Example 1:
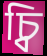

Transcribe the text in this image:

চ্বি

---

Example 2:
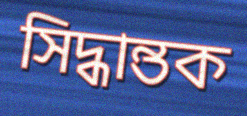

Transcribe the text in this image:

সিদ্ধান্তক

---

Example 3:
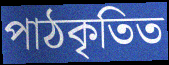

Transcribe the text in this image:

পাঠকৃতিত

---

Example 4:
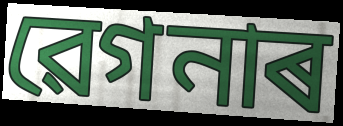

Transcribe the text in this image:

ৱেগনাৰ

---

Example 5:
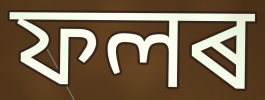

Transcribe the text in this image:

ফলৰ